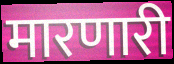
मारणारी